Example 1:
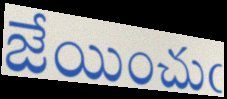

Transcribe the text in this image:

జేయించుఁ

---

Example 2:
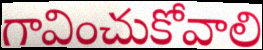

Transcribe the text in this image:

గావించుకోవాలి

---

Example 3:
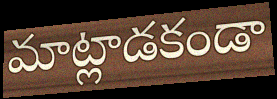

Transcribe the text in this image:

మాట్లాడకండా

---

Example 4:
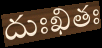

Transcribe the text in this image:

దుఃఖితః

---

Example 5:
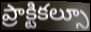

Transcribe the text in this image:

ప్రాక్టికల్సూ